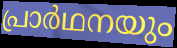
പ്രാർഥനയും